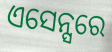
ଏସେନ୍ସରେ